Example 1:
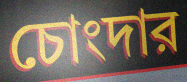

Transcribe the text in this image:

চোংদার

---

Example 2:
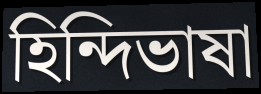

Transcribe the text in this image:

হিন্দিভাষা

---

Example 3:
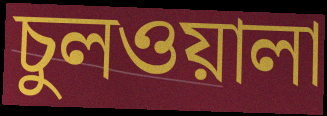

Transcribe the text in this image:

চুলওয়ালা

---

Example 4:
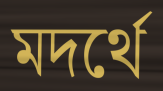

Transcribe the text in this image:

মদর্থে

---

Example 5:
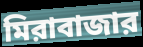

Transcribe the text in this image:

মিরাবাজার